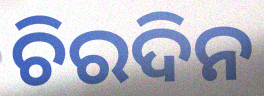
ଚିରଦିନ